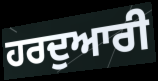
ਹਰਦੁਆਰੀ